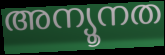
അന്യൂനത